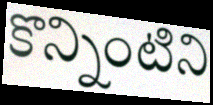
కొన్నింటిని